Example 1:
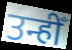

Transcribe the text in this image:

उन्हीँ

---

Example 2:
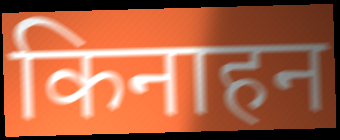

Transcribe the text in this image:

किनाहन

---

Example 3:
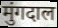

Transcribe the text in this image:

मुंगदाल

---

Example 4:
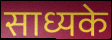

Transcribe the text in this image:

साध्यके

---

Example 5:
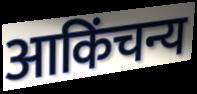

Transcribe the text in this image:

आकिंचन्य